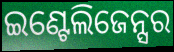
ଇଣ୍ଟେଲିଜେନ୍ସର